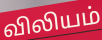
விலியம்